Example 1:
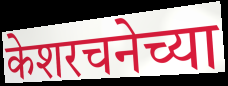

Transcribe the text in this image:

केशरचनेच्या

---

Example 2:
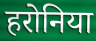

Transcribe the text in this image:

हरोनिया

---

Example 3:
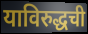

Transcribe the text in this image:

याविरुद्धची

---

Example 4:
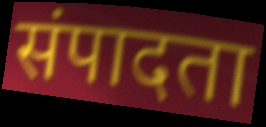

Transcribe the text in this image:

संपादता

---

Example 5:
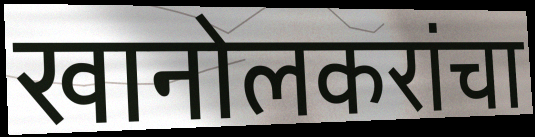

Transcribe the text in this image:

खानोलकरांचा